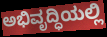
ಅಭಿವೃದ್ಧಿಯಲ್ಲಿ